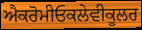
ਐਕਰੋਮੀਓਕਲੇਵੀਕੂਲਰ